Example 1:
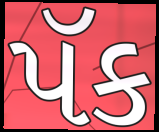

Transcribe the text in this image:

પૅક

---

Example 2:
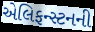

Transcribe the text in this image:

એલિફન્સ્ટનની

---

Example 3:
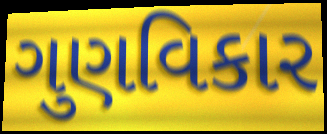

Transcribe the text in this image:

ગુણવિકાર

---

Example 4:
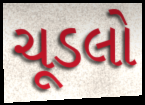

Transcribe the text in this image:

ચૂડલો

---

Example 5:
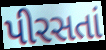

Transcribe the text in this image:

પીરસતાં